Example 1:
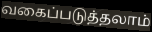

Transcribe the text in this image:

வகைப்படுத்தலாம்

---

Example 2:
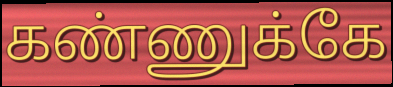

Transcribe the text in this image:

கண்ணுக்கே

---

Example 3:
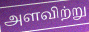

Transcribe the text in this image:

அளவிற்று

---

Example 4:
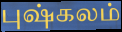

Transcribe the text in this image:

புஷ்கலம்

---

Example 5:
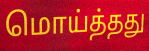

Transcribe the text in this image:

மொய்த்தது